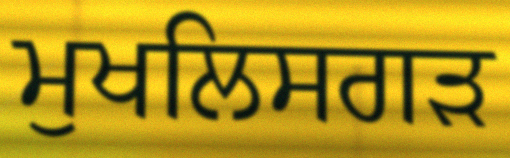
ਮੁਖਲਿਸਗੜ